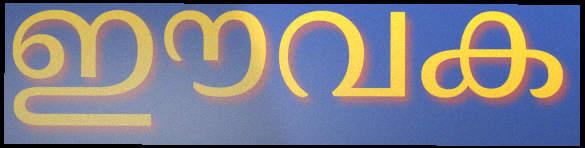
ഈവക